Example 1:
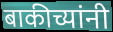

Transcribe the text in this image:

बाकीच्यांनी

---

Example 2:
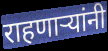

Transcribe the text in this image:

राहणार्‍यांनी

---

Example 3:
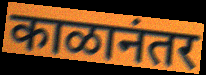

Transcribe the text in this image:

काळानंतर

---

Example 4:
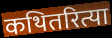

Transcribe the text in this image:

कथितरित्या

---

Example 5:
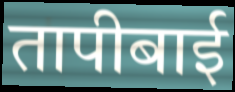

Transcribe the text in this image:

तापीबाई